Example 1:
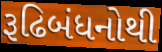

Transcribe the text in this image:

રૂઢિબંધનોથી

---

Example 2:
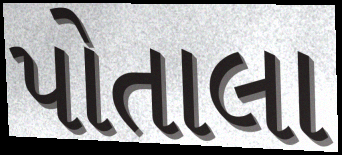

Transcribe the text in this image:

પોતાલા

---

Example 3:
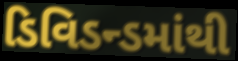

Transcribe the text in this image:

ડિવિડન્ડમાંથી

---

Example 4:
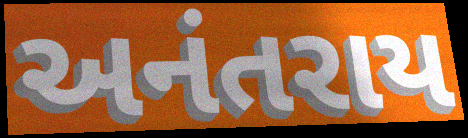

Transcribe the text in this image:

અનંતરાય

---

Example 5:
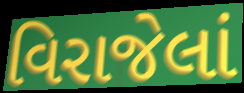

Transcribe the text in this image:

વિરાજેલાં